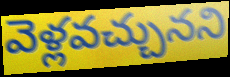
వెళ్లవచ్చునని